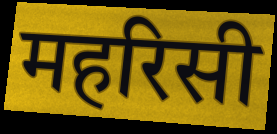
महरिसी